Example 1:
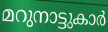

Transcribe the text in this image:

മറുനാട്ടുകാർ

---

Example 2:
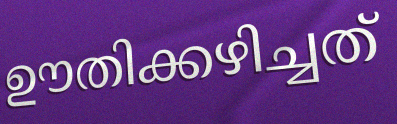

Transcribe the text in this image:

ഊതിക്കഴിച്ചത്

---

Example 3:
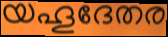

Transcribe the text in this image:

യഹൂദേതര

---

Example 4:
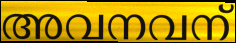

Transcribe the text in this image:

അവനവന്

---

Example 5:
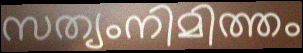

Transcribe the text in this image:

സത്യംനിമിത്തം